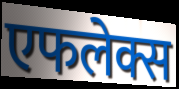
एफलेक्स